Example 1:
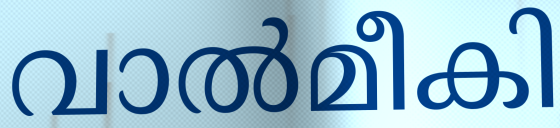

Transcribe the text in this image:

വാൽമീകി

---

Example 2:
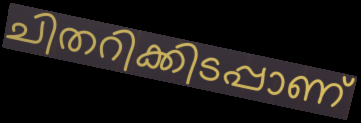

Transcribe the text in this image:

ചിതറിക്കിടപ്പാണ്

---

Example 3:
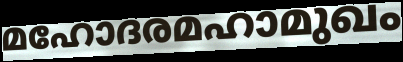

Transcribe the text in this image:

മഹോദരമഹാമുഖം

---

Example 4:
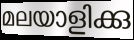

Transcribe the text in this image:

മലയാളിക്കു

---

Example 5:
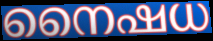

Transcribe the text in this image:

നൈഷധ